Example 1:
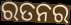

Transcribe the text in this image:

ରତନର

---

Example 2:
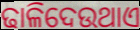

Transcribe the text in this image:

ଢାଳିଦେଉଥାଏ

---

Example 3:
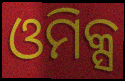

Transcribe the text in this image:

ଓମିକ୍ସ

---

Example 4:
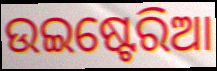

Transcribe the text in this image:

ଉଇଷ୍ଟେରିଆ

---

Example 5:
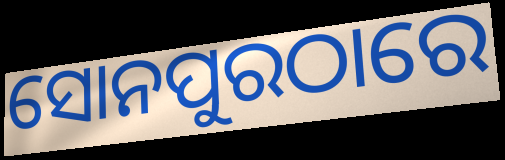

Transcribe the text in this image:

ସୋନପୁରଠାରେ